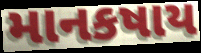
માનકષાય